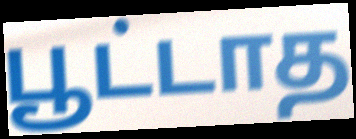
பூட்டாத